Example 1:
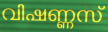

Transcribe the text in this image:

വിഷണ്ണസ്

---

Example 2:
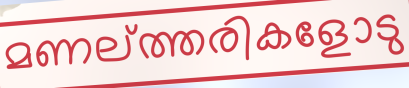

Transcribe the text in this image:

മണല്ത്തരികളോടു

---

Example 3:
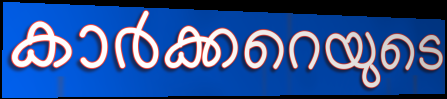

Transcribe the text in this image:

കാർക്കറെയുടെ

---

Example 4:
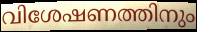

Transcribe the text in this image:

വിശേഷണത്തിനും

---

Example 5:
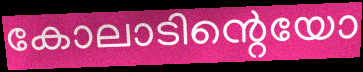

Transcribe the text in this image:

കോലാടിന്റെയോ